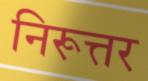
निरूत्तर